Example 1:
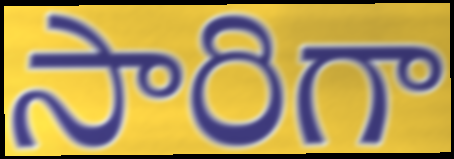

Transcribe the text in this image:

సారిగా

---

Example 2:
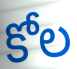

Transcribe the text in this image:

కోల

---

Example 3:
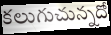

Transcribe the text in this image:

కలుగుచున్నదో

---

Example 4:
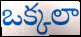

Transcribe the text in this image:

ఒక్కలా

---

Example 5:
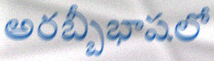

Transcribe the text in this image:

అరబ్బీభాషలో